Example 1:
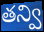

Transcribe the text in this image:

తన్వి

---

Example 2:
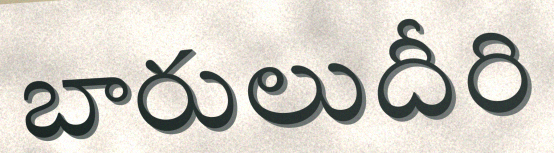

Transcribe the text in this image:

బారులుదీరి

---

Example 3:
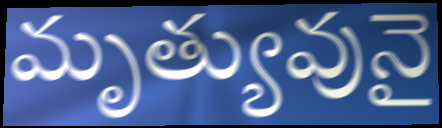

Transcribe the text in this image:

మృత్యువునై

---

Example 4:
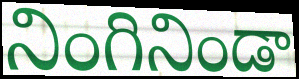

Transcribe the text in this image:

నింగినిండా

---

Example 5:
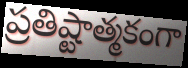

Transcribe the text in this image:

ప్రతిష్టాత్మకంగా